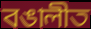
বঙালীত